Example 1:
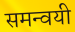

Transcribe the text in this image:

समन्वयी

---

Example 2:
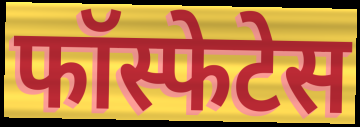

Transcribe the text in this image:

फॉस्फेटेस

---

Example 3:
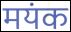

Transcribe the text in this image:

मयंक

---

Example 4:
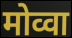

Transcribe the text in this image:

मोव्वा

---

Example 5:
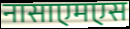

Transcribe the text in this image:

नासाएमएस